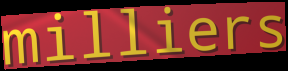
milliers